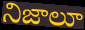
నిజాలూ